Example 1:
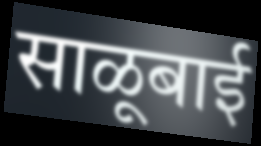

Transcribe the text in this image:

साळूबाई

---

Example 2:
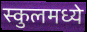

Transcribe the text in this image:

स्कुलमध्ये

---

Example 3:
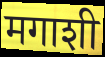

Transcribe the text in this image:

मगाशी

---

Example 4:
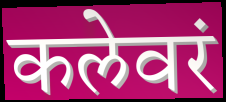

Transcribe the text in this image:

कलेवरं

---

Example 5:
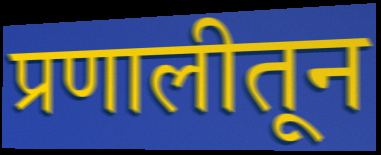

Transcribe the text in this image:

प्रणालीतून